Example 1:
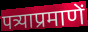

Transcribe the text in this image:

पत्र्याप्रमाणें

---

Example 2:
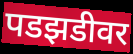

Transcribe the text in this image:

पडझडीवर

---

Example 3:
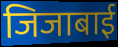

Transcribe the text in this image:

जिजाबाई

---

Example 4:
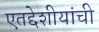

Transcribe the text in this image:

एतद्देशीयांची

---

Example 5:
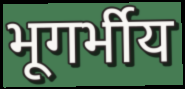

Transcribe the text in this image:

भूगर्भीय